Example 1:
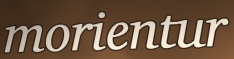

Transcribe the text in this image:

morientur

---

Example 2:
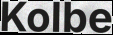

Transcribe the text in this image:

Kolbe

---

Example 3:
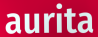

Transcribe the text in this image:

aurita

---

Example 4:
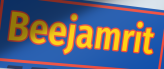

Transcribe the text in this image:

Beejamrit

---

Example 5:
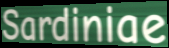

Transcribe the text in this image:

Sardiniae